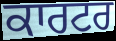
ਕਾਰਟਰ